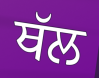
ਥੱਲ